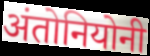
अंतोनियोनी